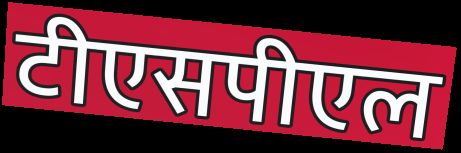
टीएसपीएल